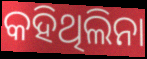
କହିଥିଲିନା